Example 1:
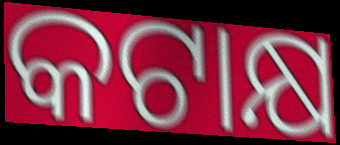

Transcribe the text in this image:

କଟାକ୍ଷ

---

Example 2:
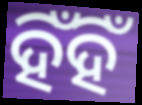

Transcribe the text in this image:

ହିଁହିଁ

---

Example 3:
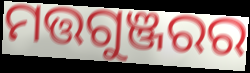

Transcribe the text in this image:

ମତ୍ତଗୁଞ୍ଜରର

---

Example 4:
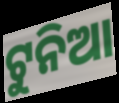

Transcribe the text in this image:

ଟୁନିଆ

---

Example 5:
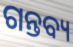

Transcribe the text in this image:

ଗନ୍ତବ୍ୟ